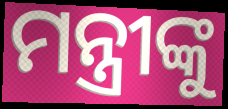
ମନ୍ତ୍ରୀଙ୍କୁ